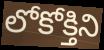
లోకోక్తిని